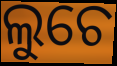
ଲୁଚେ